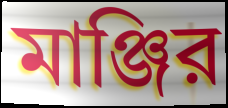
মাঞ্জির